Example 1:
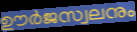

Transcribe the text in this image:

ഊർജസ്വലനും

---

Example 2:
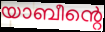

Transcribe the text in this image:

യാബീന്റെ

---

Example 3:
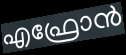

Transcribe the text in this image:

എഫ്രോൻ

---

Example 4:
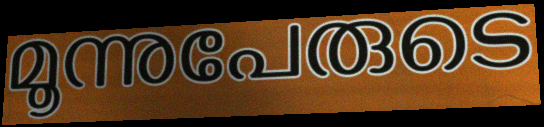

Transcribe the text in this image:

മൂന്നുപേരുടെ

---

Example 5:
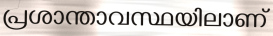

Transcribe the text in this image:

പ്രശാന്താവസ്ഥയിലാണ്